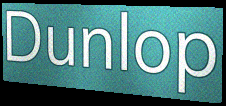
Dunlop